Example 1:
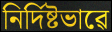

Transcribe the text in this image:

নিৰ্দিষ্টভাৱে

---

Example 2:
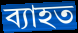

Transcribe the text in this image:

ব্যাহত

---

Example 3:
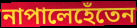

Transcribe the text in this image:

নাপালেহেঁতেন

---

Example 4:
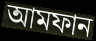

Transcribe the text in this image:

আমফান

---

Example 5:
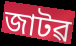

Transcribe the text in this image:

জাটৱ